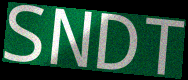
SNDT